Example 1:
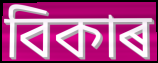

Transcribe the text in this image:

বিকাৰ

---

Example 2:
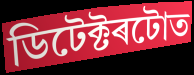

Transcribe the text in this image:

ডিটেক্টৰটোত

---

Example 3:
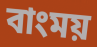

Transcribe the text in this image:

বাংময়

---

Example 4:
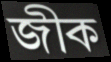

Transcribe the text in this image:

জীক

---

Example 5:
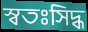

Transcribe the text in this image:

স্বতঃসিদ্ধ